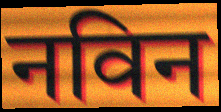
नविन